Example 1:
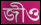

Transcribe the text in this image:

জীও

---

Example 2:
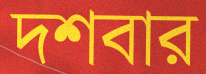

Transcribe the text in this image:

দশবার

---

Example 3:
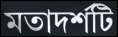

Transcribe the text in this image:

মতাদর্শটি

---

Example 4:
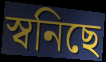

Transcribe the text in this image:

স্বনিছে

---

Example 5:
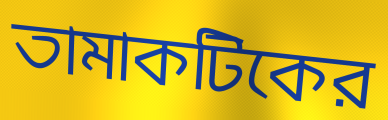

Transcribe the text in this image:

তামাকটিকের